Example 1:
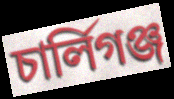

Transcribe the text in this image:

চার্লিগঞ্জ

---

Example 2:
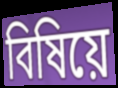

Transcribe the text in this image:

বিষিয়ে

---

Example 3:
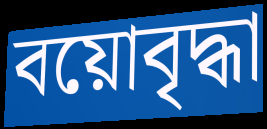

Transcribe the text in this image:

বয়োবৃদ্ধা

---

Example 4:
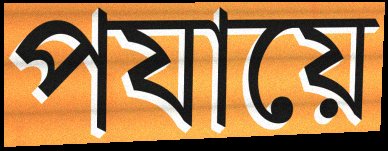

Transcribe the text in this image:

পযায়ে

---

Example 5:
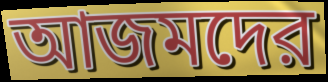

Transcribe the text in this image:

আজমদের